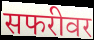
सफरीवर